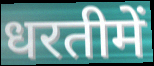
धरतीमें